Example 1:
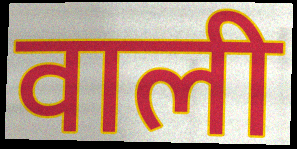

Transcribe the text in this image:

वाली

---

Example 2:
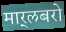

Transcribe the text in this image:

मार्लबरो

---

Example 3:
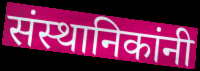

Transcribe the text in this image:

संस्थानिकांनी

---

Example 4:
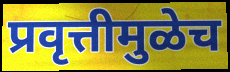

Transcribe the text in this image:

प्रवृत्तीमुळेच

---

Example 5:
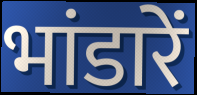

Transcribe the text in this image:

भांडारें